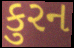
કુરન